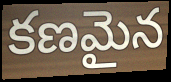
కణమైన